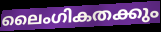
ലൈംഗികതക്കും